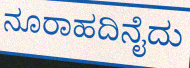
ನೂರಾಹದಿನೈದು